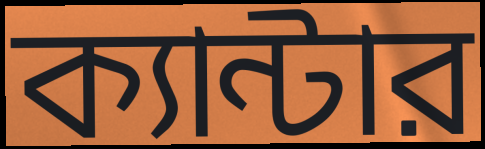
ক্যান্টার